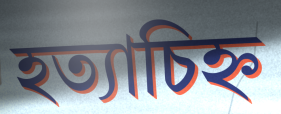
হত্যাচিহ্ন